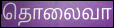
தொலைவா